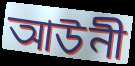
আউনী